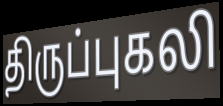
திருப்புகலி